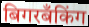
बिगरबँकिंग